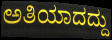
ಅತಿಯಾದದ್ದು